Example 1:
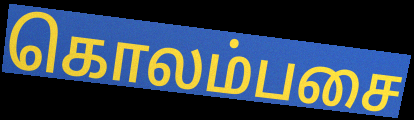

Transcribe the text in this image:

கொலம்பசை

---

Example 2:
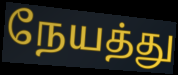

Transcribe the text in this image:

நேயத்து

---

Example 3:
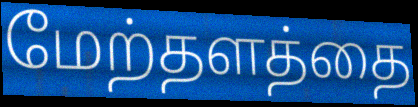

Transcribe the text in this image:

மேற்தளத்தை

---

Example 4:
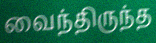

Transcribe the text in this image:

வைந்திருந்த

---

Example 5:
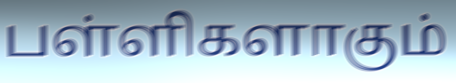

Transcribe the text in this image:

பள்ளிகளாகும்